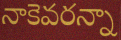
నాకెవరన్నా